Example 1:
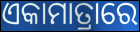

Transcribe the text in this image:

ଏକାମାତ୍ରାରେ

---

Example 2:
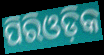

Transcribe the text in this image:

ପିରିଓଡ଼ିକ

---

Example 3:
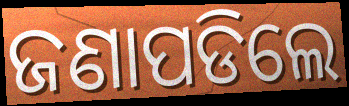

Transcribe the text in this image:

ଜଣାପଡିଲେ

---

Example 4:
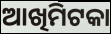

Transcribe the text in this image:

ଆଖିମିଟକା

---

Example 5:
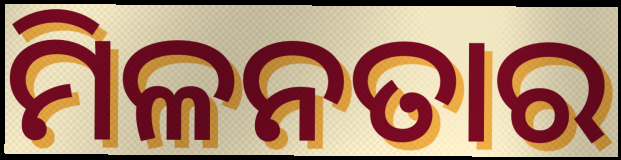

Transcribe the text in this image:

ମିଳନତାର